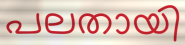
പലതായി